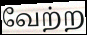
வேற்ற